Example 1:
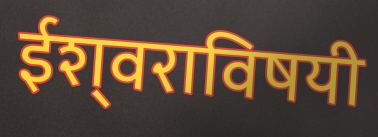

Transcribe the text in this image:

ईश्वराविषयी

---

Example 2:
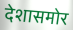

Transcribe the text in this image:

देशासमोर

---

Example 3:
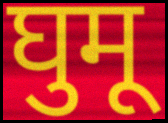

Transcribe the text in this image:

घुमू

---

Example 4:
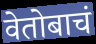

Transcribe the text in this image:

वेतोबाचं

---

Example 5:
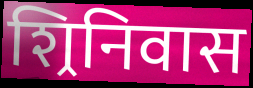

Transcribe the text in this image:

श्रिनिवास